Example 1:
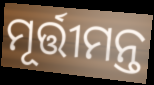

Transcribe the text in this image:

ମୂର୍ତ୍ତୀମନ୍ତ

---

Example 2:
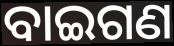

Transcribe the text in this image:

ବାଇଗଣ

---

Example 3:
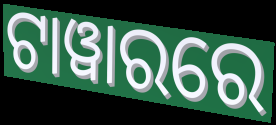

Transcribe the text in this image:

ଟାୱାରରେ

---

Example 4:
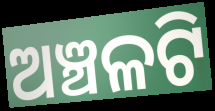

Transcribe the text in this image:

ଅଞ୍ଚଳଟି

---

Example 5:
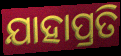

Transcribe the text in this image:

ଯାହାପ୍ରତି